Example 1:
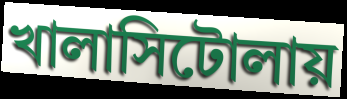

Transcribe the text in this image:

খালাসিটোলায়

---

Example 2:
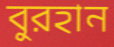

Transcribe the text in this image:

বুরহান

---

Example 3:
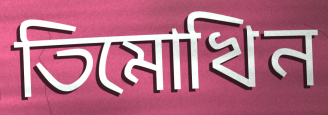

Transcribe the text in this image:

তিমোখিন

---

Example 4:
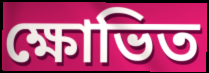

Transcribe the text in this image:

ক্ষোভিত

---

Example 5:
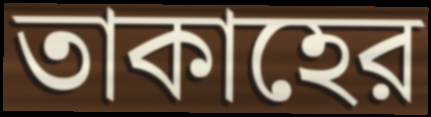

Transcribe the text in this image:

তাকাহের